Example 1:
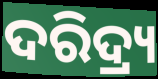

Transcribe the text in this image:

ଦରିଦ୍ର୍ୟ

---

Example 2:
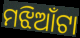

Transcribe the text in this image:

ମଝିଆଁଟା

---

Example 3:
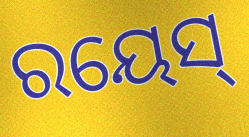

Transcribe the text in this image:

ରୟେସ୍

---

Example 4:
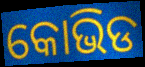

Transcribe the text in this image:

କୋଭିଡ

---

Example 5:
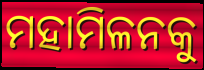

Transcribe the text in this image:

ମହାମିଳନକୁ